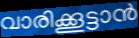
വാരിക്കൂട്ടാൻ